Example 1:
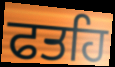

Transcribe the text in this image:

ਫਤਹਿ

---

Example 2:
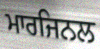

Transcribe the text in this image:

ਮਾਰਜਿਨਲ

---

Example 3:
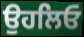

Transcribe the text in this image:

ਉਹਲਿਓ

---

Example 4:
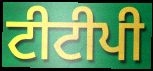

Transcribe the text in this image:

ਟੀਟੀਪੀ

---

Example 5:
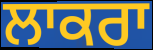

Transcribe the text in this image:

ਲਾਕਰਾ